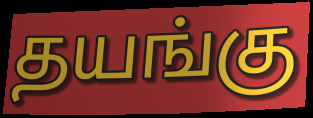
தயங்கு